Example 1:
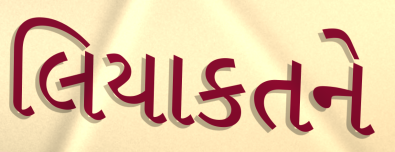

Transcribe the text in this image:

લિયાકતને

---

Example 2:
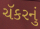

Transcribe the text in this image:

ચૅકરનું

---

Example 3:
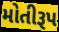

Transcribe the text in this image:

મોતીરૂપ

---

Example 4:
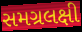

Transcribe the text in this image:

સમગ્રલક્ષી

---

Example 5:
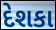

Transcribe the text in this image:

દેશકા